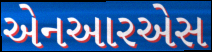
એનઆરએસ